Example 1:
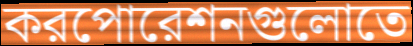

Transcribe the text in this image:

করপোরেশনগুলোতে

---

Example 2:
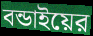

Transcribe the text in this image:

বন্ডাইয়ের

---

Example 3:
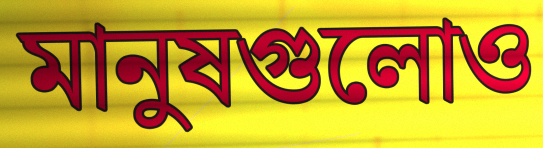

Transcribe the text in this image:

মানুষগুলোও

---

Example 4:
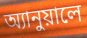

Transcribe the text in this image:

অ্যানুয়ালে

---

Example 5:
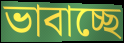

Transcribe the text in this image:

ভাবাচ্ছে